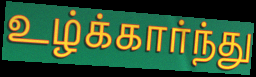
உழ்க்கார்ந்து